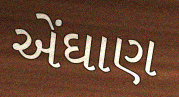
એંઘાણ